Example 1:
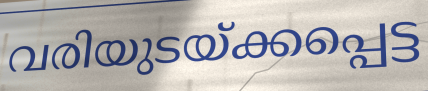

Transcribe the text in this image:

വരിയുടയ്ക്കപ്പെട്ട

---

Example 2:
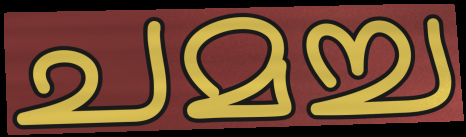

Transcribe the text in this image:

ചമച്ച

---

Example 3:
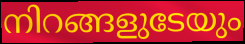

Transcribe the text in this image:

നിറങ്ങളുടേയും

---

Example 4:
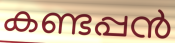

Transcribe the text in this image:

കണ്ടപ്പൻ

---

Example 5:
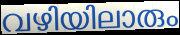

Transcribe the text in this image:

വഴിയിലാരും